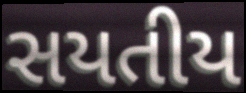
સયતીય